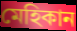
মেহিকান